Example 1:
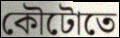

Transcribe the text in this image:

কৌটোতে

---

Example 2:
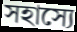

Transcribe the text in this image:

সহাস্যে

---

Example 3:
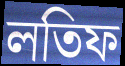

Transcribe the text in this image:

লতিফ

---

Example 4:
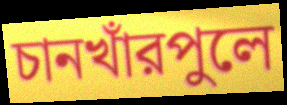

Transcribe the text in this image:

চানখাঁরপুলে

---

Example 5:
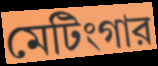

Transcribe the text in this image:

মেটিংগার